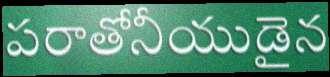
పరాతోనీయుడైన